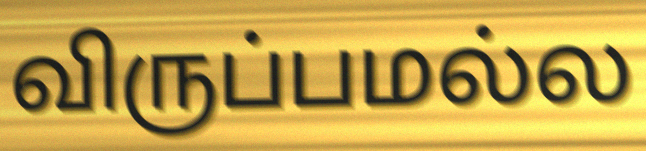
விருப்பமல்ல